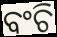
ବଂଚି